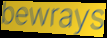
bewrays